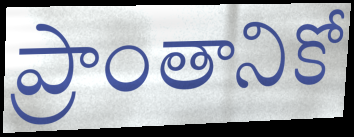
ప్రాంతానికో